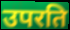
उपरति